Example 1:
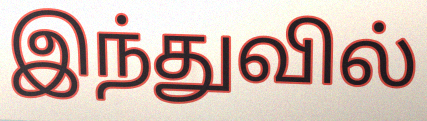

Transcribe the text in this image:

இந்துவில்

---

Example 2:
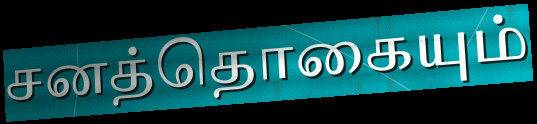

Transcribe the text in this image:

சனத்தொகையும்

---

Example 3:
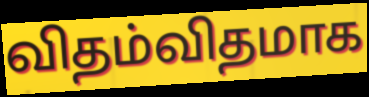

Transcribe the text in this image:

விதம்விதமாக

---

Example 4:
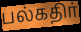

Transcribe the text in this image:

பல்கதிர்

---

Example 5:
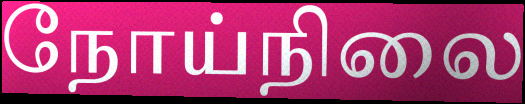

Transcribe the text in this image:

நோய்நிலை